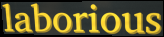
laborious